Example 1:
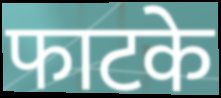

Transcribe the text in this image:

फाटके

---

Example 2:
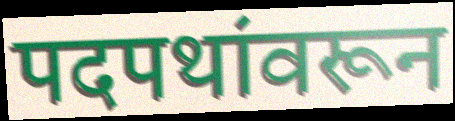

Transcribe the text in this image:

पदपथांवरून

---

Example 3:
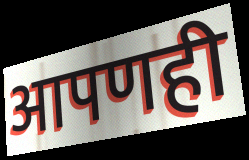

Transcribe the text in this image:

आपणही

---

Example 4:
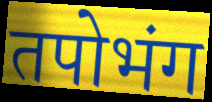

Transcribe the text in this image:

तपोभंग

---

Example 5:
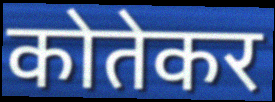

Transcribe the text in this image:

कोतेकर